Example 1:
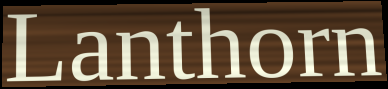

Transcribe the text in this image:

Lanthorn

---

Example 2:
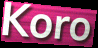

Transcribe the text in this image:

Koro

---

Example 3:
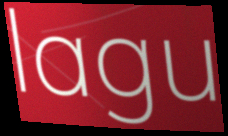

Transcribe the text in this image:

lagu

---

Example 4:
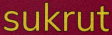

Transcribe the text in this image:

sukrut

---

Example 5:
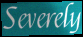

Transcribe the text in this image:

Severely